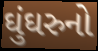
ઘુંઘરુનો